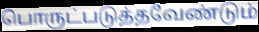
பொருட்படுத்தவேண்டும்